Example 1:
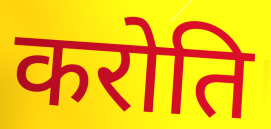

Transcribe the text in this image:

करोति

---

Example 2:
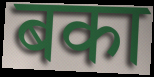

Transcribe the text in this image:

बका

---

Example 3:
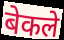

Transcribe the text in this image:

बेकले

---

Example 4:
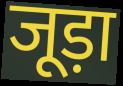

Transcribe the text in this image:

जूड़ा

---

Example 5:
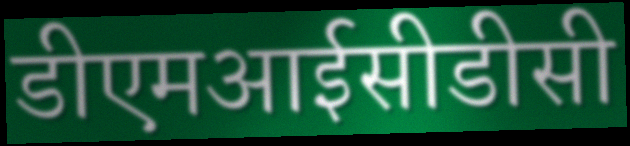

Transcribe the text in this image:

डीएमआईसीडीसी